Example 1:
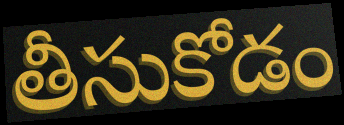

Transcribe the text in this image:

తీసుకోడం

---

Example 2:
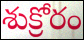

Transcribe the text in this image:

శుక్రోరం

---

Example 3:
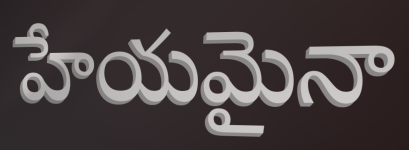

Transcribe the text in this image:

హేయమైనా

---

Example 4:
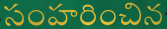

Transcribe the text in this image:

సంహరించిన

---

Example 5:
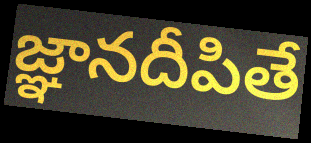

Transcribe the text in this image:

జ్ఞానదీపితే